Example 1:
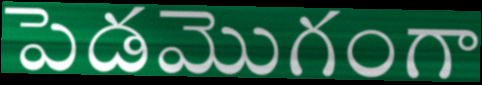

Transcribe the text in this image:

పెడమొగంగా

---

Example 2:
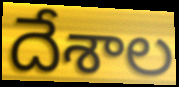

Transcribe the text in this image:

దేశాల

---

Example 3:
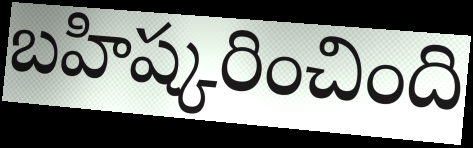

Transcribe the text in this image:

బహిష్కరించింది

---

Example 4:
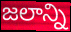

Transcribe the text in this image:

జలాన్ని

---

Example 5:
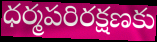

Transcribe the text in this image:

ధర్మపరిరక్షణకు